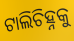
ଟାଲିଚିହ୍ନକୁ